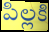
పిల్లకి